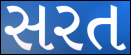
સરત